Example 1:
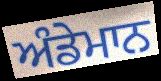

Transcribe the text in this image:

ਅੰਡੇਮਾਨ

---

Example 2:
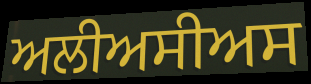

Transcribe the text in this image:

ਅਲੀਅਸੀਅਸ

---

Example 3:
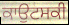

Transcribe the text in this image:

ਕਾਉਟਸਕੀ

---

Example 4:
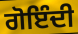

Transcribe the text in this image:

ਗੋਇੰਦੀ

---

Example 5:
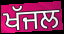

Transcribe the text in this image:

ਖੱਜਲ